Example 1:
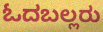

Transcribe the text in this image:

ಓದಬಲ್ಲರು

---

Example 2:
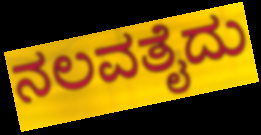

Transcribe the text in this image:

ನಲವತೈದು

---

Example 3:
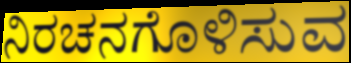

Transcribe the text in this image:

ನಿರಚನಗೊಳಿಸುವ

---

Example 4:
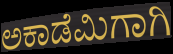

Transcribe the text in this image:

ಅಕಾಡೆಮಿಗಾಗಿ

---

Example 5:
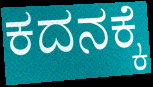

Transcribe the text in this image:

ಕದನಕ್ಕೆ